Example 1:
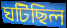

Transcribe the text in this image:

ঘটিছিল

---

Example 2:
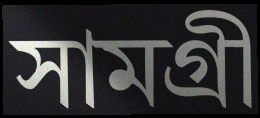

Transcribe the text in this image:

সামগ্ৰী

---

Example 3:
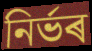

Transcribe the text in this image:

নিৰ্ভৰ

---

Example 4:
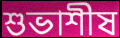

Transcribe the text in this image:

শুভাশীষ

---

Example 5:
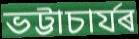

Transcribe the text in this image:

ভট্টাচাৰ্যৰ